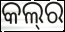
କଲ୍‌ର